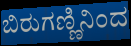
ಬಿರುಗಣ್ಣಿನಿಂದ